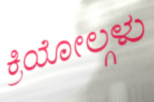
ಕ್ರಿಯೋಲ್ಗಳು